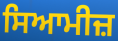
ਸਿਆਮੀਜ਼